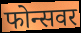
फोन्सवर